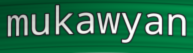
mukawyan